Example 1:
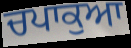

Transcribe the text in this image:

ਚਪਾਕੁਆ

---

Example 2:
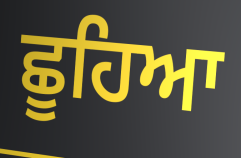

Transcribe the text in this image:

ਛੂਹਿਆ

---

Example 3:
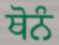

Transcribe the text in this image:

ਥੋਨੰ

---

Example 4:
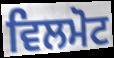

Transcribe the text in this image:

ਵਿਲਮੋਟ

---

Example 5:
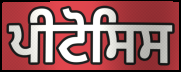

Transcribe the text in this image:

ਪੀਟੋਸਿਸ